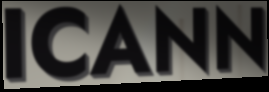
ICANN